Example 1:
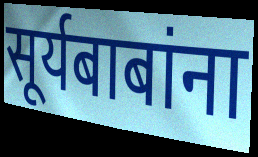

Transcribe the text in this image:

सूर्यबाबांना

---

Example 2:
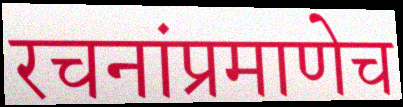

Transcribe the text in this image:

रचनांप्रमाणेच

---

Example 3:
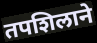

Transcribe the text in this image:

तपशिलाने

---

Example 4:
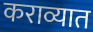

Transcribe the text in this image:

कराव्यात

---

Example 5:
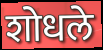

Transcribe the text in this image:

शोधले